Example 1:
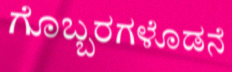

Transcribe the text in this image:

ಗೊಬ್ಬರಗಳೊಡನೆ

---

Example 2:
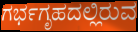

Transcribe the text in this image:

ಗರ್ಭಗೃಹದಲ್ಲಿರುವ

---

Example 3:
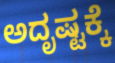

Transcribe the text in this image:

ಅದೃಷ್ಟಕ್ಕೆ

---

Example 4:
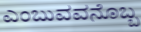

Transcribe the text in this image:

ಎಂಬುವವನೊಬ್ಬ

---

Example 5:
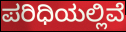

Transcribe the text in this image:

ಪರಿಧಿಯಲ್ಲಿವೆ